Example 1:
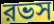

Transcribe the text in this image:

রভস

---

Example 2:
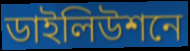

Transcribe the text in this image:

ডাইলিউশনে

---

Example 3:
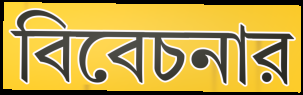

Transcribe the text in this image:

বিবেচনার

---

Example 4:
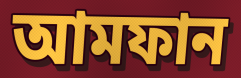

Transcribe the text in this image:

আমফান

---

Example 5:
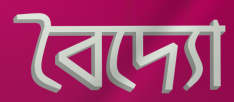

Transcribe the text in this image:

বৈদ্যো